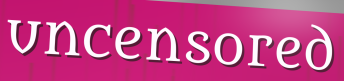
uncensored